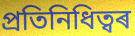
প্ৰতিনিধিত্বৰ